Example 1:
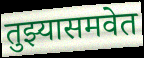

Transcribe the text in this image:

तुझ्यासमवेत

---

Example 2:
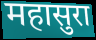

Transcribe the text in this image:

महासुरा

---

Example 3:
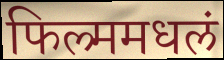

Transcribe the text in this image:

फिल्ममधलं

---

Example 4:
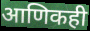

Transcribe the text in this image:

आणिकही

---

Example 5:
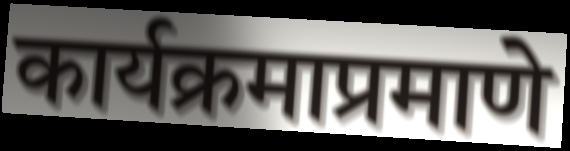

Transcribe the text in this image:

कार्यक्रमाप्रमाणे